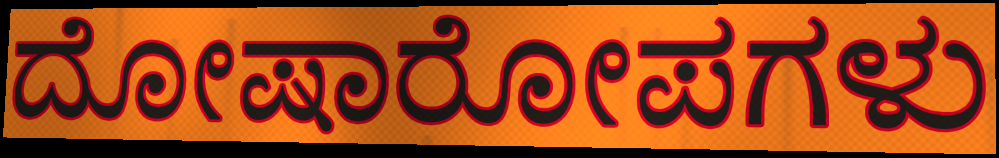
ದೋಷಾರೋಪಗಳು